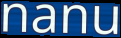
nanu